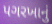
પગરખાનું